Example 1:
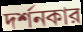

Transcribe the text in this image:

দর্শনকার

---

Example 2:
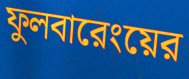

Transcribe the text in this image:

ফুলবারেংয়ের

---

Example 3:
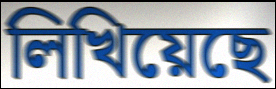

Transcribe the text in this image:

লিখিয়েছে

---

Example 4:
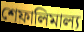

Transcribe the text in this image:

শেফালিমাল্য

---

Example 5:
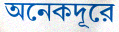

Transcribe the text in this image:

অনেকদূরে